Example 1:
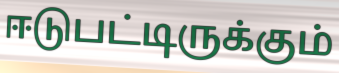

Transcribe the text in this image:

ஈடுபட்டிருக்கும்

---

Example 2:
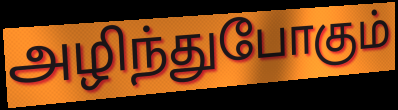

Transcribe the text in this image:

அழிந்துபோகும்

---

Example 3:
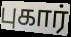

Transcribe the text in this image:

புகார்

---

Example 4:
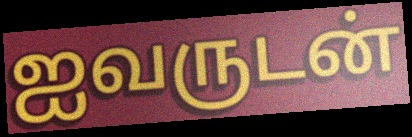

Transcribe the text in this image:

ஐவருடன்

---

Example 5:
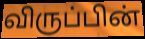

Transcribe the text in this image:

விருப்பின்